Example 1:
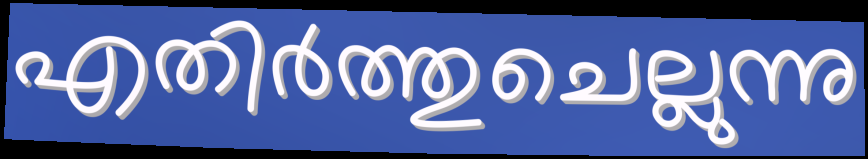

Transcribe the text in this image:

എതിർത്തുചെല്ലുന്നു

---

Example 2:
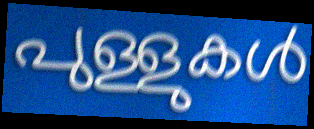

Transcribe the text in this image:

പുള്ളുകൾ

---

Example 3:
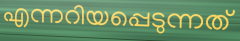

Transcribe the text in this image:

എന്നറിയപ്പെടുന്നത്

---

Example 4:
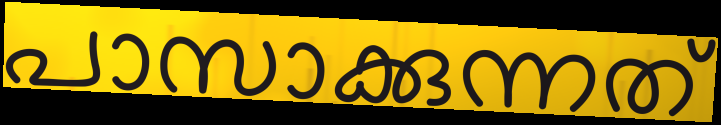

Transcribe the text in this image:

പാസാക്കുന്നത്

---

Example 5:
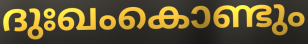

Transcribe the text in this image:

ദുഃഖംകൊണ്ടും